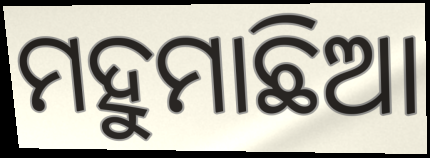
ମହୁମାଛିଆ